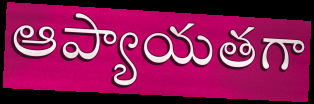
ఆప్యాయతగా